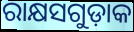
ରାକ୍ଷସଗୁଡ଼ାକ